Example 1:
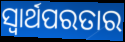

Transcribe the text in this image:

ସ୍ଵାର୍ଥପରତାର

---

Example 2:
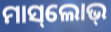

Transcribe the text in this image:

ମାସ୍‌ଲୋଭ୍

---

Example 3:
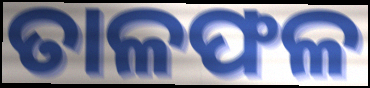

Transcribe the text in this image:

ତାଳଫଳ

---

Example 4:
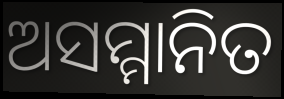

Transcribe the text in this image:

ଅସମ୍ମାନିତ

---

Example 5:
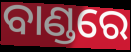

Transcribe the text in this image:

ବାଣ୍ଡରେ